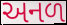
અનળ